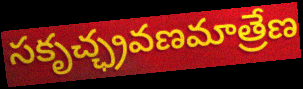
సకృచ్ఛ్రవణమాత్రేణ